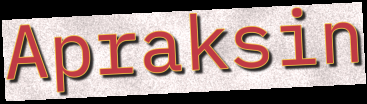
Apraksin